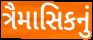
ત્રૈમાસિકનું